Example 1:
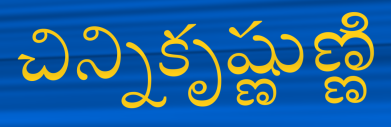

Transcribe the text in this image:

చిన్నికృష్ణుణ్ణి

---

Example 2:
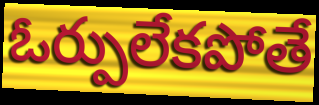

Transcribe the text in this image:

ఓర్పులేకపోతే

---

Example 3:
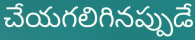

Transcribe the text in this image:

చేయగలిగినప్పుడే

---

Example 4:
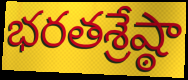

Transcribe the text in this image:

భరతశ్రేష్ఠా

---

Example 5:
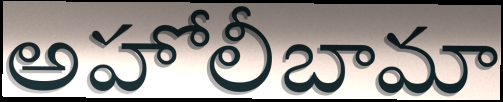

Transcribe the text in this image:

అహోలీబామా